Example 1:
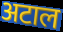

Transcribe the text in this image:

अटाल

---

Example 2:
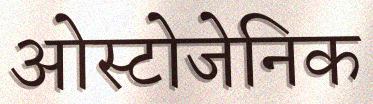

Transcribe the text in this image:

ओस्टोजेनिक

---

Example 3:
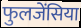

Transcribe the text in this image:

फुलजेंसिया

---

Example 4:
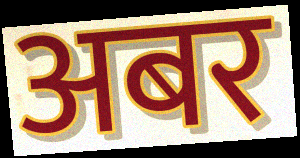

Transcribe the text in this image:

अबर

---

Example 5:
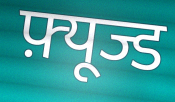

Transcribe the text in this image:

फ़्यूज्ड